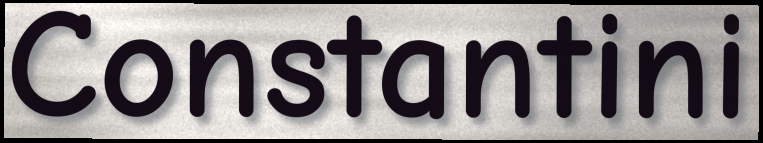
Constantini